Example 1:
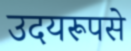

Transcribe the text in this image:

उदयरूपसे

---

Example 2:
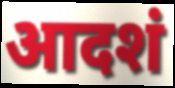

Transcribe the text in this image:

आदशं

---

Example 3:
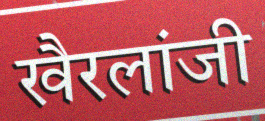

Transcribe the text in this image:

खैरलांजी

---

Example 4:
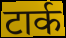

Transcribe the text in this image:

टार्क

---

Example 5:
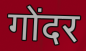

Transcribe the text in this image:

गोंदर